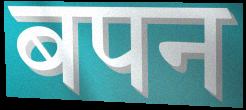
बपन